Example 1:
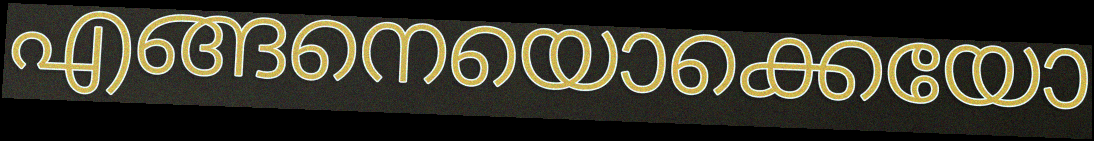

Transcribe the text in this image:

എങ്ങനെയൊക്കെയോ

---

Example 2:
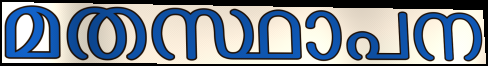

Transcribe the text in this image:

മതസ്ഥാപന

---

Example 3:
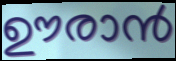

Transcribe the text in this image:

ഊരാൻ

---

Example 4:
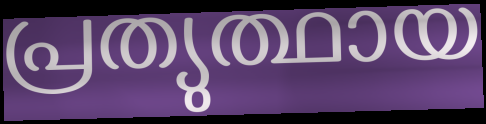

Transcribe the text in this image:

പ്രത്യുത്ഥായ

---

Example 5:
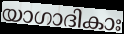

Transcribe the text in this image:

യാഗാദികാഃ